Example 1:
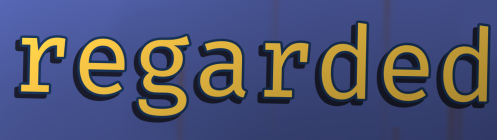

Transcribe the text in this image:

regarded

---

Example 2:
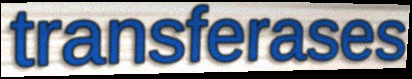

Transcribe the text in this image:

transferases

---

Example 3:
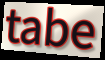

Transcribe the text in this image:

tabe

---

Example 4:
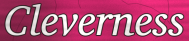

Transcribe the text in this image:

Cleverness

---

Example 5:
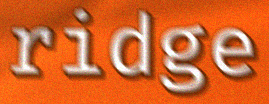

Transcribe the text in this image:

ridge